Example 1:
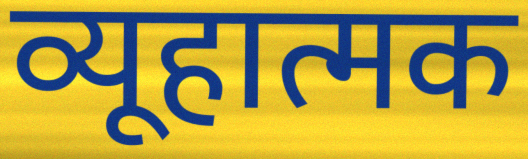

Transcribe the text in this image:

व्यूहात्मक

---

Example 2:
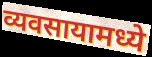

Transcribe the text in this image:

व्यवसायामध्ये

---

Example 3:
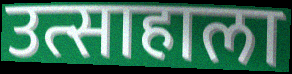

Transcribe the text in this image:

उत्साहाला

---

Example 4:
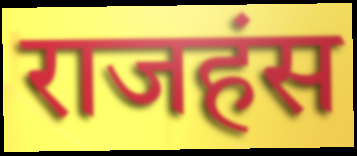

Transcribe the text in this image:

राजहंस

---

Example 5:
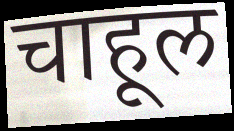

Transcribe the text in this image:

चाहूल